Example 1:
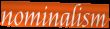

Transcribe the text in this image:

nominalism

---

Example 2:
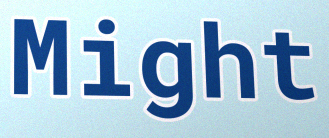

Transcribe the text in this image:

Might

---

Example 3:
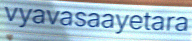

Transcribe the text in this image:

vyavasaayetara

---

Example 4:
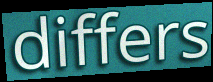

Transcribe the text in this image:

differs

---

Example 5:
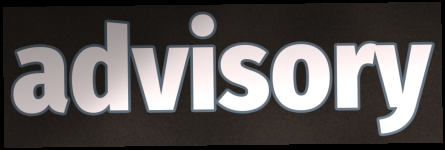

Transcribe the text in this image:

advisory